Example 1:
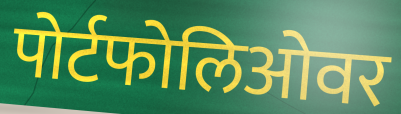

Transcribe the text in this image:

पोर्टफोलिओवर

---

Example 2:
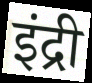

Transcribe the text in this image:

इंद्री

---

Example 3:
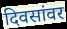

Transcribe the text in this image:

दिवसांवर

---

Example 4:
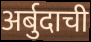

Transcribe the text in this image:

अर्बुदाची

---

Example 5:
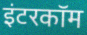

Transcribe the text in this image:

इंटरकॉम